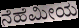
ನೆಹೆಮೀಯ